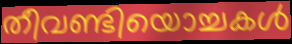
തീവണ്ടിയൊച്ചകൾ